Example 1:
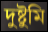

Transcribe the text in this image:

দুষ্টুমি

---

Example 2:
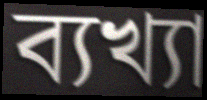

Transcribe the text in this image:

ব্যখ্যা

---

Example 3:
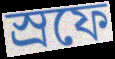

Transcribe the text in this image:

স্রফে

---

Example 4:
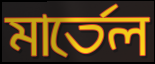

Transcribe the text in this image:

মার্তেল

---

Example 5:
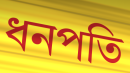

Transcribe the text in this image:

ধনপতি